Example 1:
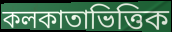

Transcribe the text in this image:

কলকাতাভিত্তিক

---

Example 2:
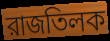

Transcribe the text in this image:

রাজতিলক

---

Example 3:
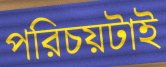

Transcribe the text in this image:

পরিচয়টাই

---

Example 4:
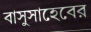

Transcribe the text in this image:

বাসুসাহেবের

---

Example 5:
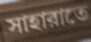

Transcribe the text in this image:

সাহারাতে